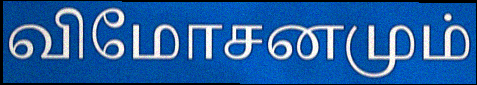
விமோசனமும்